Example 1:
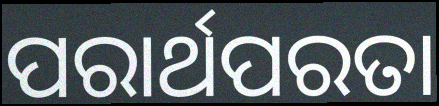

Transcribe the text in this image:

ପରାର୍ଥପରତା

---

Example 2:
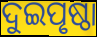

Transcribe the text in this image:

ଦୁଇପୃଷ୍ଠା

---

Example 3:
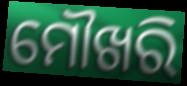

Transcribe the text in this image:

ମୌଖରି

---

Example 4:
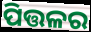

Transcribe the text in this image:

ପିତ୍ତଳର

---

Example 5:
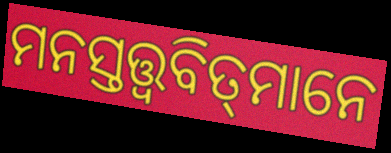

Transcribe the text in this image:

ମନସ୍ତତ୍ତ୍ୱବିତ୍‌ମାନେ